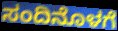
ಸಂದಿನೊಳಗೆ